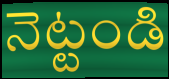
నెట్టండి